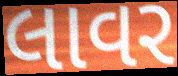
લાવર